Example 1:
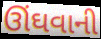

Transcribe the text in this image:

ઊંઘવાની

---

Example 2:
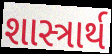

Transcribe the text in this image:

શાસ્ત્રાર્થ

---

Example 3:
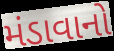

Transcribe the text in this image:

મંડાવાનો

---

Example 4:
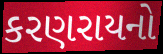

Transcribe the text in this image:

કરણરાયનો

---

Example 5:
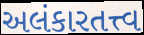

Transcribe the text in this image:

અલંકારતત્ત્વ